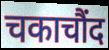
चकाचौंद